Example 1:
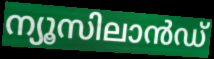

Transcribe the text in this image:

ന്യൂസിലാൻഡ്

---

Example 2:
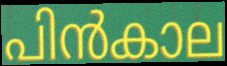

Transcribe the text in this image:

പിൻകാല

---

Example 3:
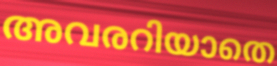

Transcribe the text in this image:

അവരറിയാതെ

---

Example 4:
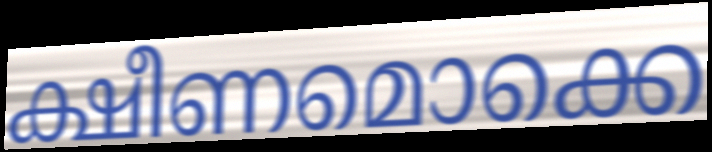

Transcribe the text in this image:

ക്ഷീണമൊക്കെ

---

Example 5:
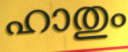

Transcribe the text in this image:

ഹാതും